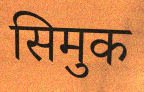
सिमुक